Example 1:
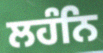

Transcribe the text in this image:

ਲਹੰਨਿ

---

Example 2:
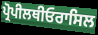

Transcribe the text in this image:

ਪ੍ਰੋਪੀਲਥੀਓਰਾਸਿਲ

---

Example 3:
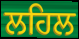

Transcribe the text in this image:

ਲਹਿਲ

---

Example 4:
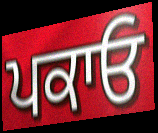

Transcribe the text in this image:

ਪਕਾਓ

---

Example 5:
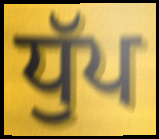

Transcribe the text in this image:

ਧੁੱਪ